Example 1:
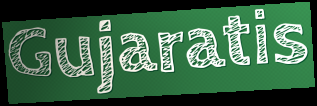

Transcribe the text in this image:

Gujaratis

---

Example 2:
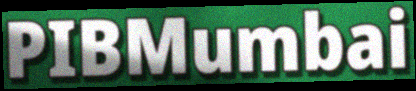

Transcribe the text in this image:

PIBMumbai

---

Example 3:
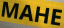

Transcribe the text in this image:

MAHE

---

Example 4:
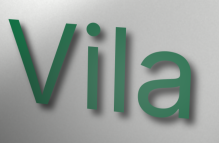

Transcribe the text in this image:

Vila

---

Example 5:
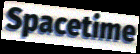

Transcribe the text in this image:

Spacetime